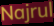
Najrul